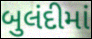
બુલંદીમાં